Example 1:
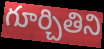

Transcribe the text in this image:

గూర్చితిని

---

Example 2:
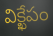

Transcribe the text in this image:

విక్ఖేపం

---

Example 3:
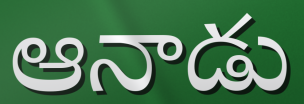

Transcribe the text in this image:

ఆనాడు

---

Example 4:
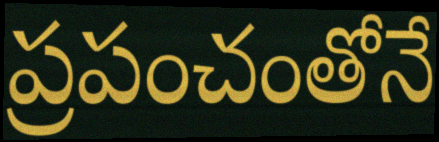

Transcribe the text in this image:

ప్రపంచంతోనే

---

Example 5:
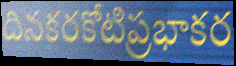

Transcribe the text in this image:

దినకరకోటిప్రభాకర